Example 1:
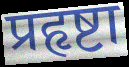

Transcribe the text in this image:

प्रहृष्टा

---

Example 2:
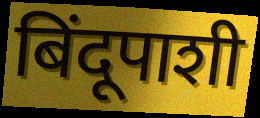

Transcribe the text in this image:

बिंदूपाशी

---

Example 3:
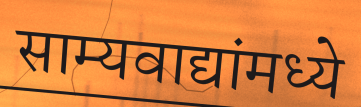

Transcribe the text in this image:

साम्यवाद्यांमध्ये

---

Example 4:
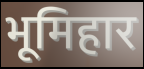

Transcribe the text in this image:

भूमिहार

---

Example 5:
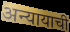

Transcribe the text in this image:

अन्यायाची